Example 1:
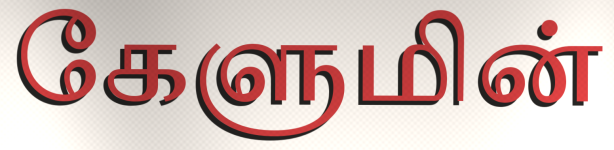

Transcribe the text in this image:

கேளுமின்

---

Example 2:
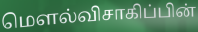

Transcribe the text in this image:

மௌல்விசாகிப்பின்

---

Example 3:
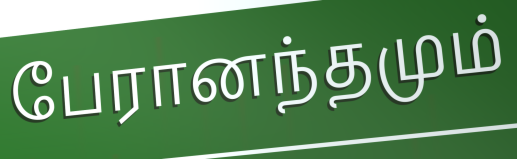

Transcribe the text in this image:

பேரானந்தமும்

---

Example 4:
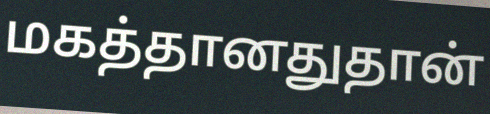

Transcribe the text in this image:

மகத்தானதுதான்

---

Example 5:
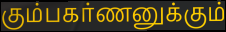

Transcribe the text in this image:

கும்பகர்ணனுக்கும்